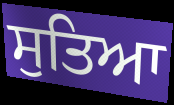
ਸੁਤਿਆ